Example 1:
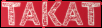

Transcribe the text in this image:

TAKAT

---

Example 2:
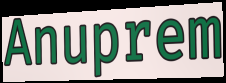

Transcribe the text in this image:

Anuprem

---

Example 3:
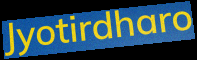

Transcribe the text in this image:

Jyotirdharo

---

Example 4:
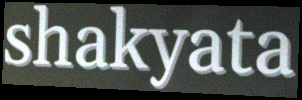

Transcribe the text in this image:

shakyata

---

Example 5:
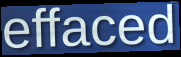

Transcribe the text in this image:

effaced